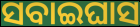
ସବାଇଘାସ